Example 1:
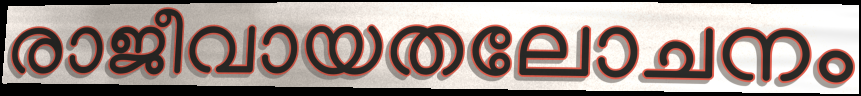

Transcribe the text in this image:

രാജീവായതലോചനം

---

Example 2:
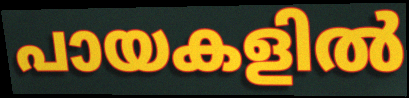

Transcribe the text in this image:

പായകളിൽ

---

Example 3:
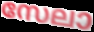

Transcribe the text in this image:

സേലാ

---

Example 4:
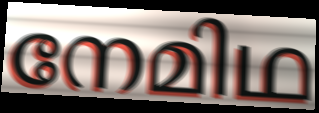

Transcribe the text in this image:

നേമിഥ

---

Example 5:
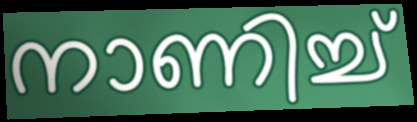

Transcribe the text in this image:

നാണിച്ച്